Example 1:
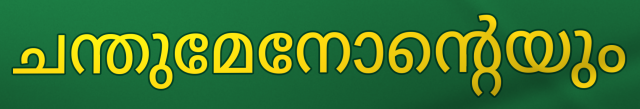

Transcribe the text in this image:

ചന്തുമേനോന്റെയും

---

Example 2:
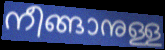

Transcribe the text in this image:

നീങ്ങാനുള്ള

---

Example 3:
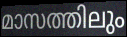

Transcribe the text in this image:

മാസത്തിലും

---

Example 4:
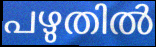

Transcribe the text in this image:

പഴുതിൽ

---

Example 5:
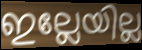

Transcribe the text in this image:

ഇല്ലേയില്ല